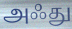
அஃது